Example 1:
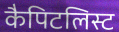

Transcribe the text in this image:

कैपिटलिस्ट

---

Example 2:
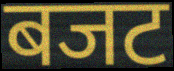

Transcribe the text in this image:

बजट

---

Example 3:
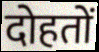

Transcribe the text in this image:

दोहतों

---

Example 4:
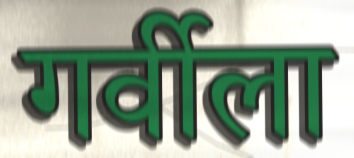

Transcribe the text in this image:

गर्वीला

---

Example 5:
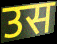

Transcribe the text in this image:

उस